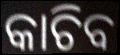
କାଚିବ